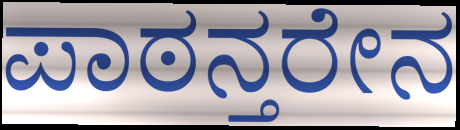
ಪಾಠನ್ತರೇನ